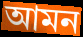
আমন